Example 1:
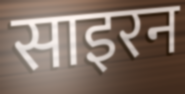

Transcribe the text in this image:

साइरन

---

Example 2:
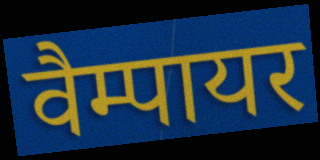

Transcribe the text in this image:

वैम्पायर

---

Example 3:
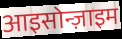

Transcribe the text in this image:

आइसोन्ज़ाइम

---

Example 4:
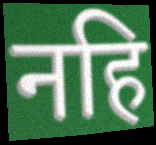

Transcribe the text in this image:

नहि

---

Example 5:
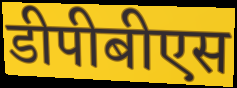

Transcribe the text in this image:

डीपीबीएस